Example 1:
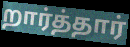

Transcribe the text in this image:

றார்த்தார்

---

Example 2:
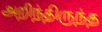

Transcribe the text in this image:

அறிந்திருந்த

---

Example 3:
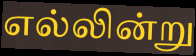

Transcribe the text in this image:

எல்லின்று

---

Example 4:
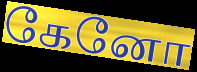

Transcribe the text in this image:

கேனோ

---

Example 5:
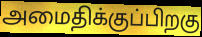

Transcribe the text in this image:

அமைதிக்குப்பிறகு